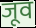
जूव